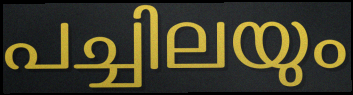
പച്ചിലയും